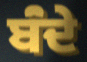
ਬਂੰਦੇ